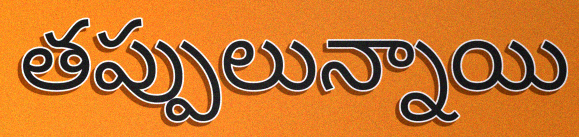
తప్పులున్నాయి